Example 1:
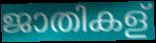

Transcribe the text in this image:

ജാതികള്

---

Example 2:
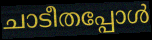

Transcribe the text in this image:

ചാടീതപ്പോൾ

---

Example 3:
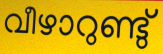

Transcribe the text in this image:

വീഴാറുണ്ടു്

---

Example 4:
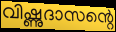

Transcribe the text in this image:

വിഷ്ണുദാസന്റെ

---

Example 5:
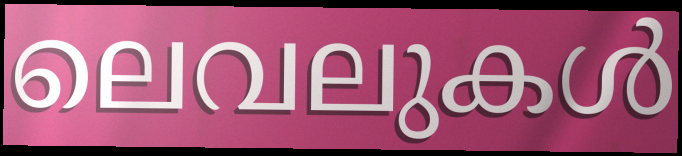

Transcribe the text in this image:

ലെവലുകൾ